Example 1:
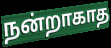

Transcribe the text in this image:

நன்றாகாத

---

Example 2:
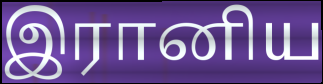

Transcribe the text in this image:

இரானிய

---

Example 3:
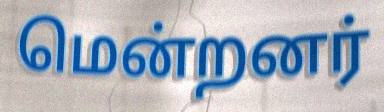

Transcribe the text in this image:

மென்றனர்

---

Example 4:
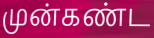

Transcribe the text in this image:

முன்கண்ட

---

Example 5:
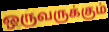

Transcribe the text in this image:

ஒருவருக்கும்